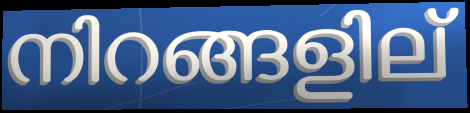
നിറങ്ങളില്